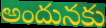
అందునకు